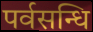
पर्वसन्धि